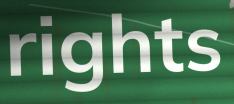
rights